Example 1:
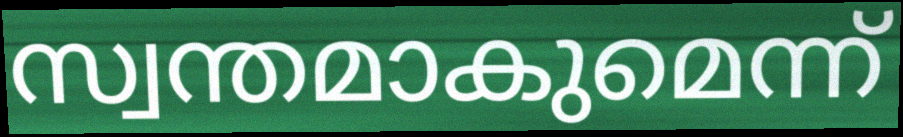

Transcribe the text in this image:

സ്വന്തമാകുമെന്ന്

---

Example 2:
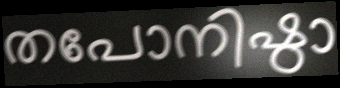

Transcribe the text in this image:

തപോനിഷ്ഠാ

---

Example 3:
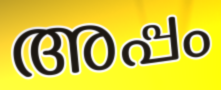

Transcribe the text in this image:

അപ്പം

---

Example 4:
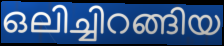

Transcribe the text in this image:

ഒലിച്ചിറങ്ങിയ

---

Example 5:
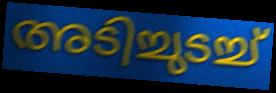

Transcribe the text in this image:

അടിച്ചുടച്ച്